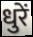
धुरें